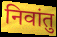
निवांतु